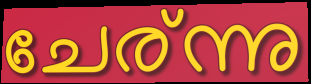
ചേര്ന്നു